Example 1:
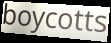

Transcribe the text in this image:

boycotts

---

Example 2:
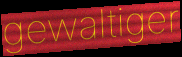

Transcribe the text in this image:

gewaltiger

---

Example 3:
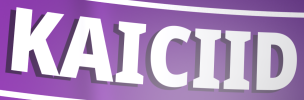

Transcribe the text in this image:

KAICIID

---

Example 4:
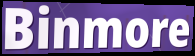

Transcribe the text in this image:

Binmore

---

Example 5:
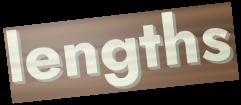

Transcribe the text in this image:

lengths